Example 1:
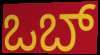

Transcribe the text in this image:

ಒಬ್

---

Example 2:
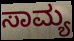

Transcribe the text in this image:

ಸಾಮ್ಯ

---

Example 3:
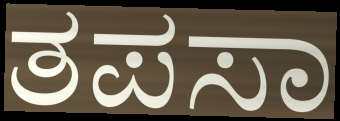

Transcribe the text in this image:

ತಪಸಾ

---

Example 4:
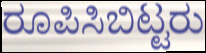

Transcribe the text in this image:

ರೂಪಿಸಿಬಿಟ್ಟರು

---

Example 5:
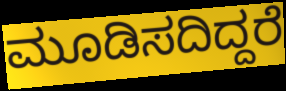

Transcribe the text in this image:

ಮೂಡಿಸದಿದ್ದರೆ